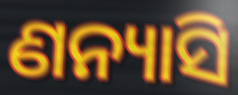
ଣନ୍ୟାସି